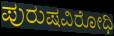
ಪುರುಷವಿರೋಧಿ